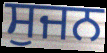
ਸੁਜਨ